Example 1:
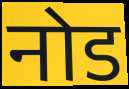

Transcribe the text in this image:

नोड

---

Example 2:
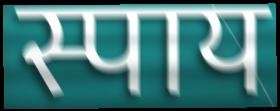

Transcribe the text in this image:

स्पाय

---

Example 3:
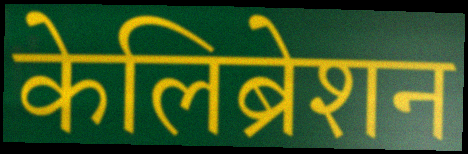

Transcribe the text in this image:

केलिब्रेशन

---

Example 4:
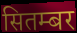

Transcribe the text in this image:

सितम्बर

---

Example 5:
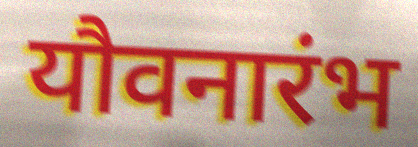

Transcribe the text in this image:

यौवनारंभ